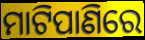
ମାଟିପାଣିରେ